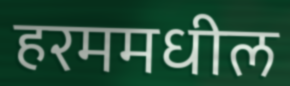
हरममधील